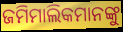
ଜମିମାଲିକମାନଙ୍କୁ